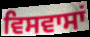
ਵਿਸਵਾਸਾਂ